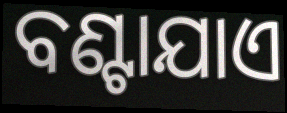
ବଣ୍ଟାଯାଏ